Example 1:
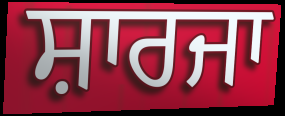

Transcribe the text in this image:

ਸ਼ਾਰਜਾ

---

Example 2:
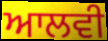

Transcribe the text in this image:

ਆਲਵੀ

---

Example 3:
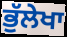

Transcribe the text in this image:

ਭੁੱਲੇਖਾ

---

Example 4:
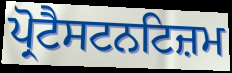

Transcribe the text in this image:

ਪ੍ਰੋਟੈਸਟਨਟਿਜ਼ਮ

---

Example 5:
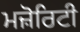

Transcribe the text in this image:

ਮਜ਼ੋਰਿਟੀ